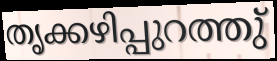
തൃക്കഴിപ്പുറത്തു്